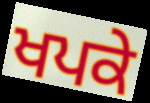
ਖਪਕੇ